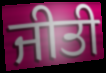
ਜੀਤੀ